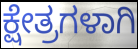
ಕ್ಷೇತ್ರಗಳಾಗಿ